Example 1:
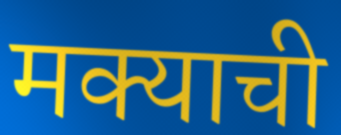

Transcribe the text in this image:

मक्याची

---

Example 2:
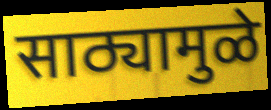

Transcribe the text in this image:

साठ्यामुळे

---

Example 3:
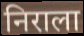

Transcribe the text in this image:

निराला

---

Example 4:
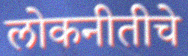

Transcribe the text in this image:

लोकनीतीचे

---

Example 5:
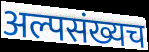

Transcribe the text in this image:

अल्पसंख्यच